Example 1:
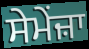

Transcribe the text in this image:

ਸੇਮੇਂਜ਼ਾ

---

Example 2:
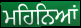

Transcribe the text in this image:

ਮਹਿਨਿਆਂ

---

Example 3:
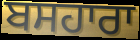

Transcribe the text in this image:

ਬਸਹਾਰਾ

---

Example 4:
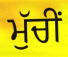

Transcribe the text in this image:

ਮੁੱਚੀਂ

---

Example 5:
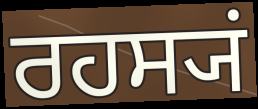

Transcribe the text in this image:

ਰਹਸ੍ਯਂ